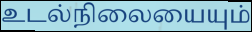
உடல்நிலையையும்